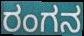
ರಂಗನ